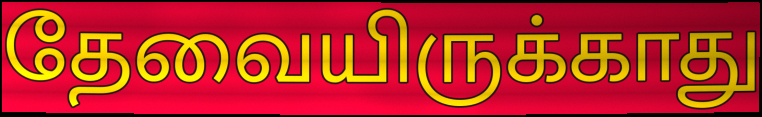
தேவையிருக்காது